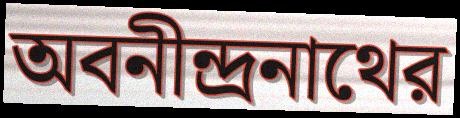
অবনীন্দ্রনাথের